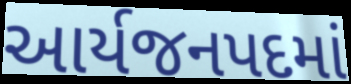
આર્યજનપદમાં